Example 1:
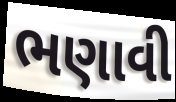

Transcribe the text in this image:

ભણાવી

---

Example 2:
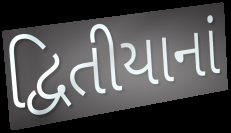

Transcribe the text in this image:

દ્વિતીયાનાં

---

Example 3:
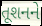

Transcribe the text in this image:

તૂશનને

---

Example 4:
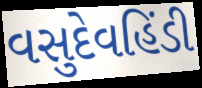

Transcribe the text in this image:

વસુદેવહિંડી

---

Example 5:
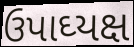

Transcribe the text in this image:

ઉપાઘ્યક્ષ